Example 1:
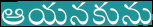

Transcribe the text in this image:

ఆయనకును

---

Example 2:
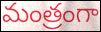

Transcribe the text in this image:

మంత్రంగా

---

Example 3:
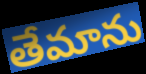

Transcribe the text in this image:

తేమాను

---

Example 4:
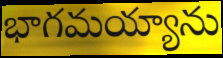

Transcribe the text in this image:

భాగమయ్యాను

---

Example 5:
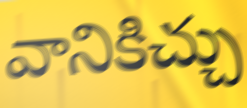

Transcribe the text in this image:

వానికిచ్చు